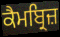
ਕੈਮਬ੍ਰਿਜ਼